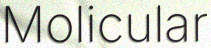
Molicular